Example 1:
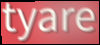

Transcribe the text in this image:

tyare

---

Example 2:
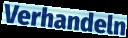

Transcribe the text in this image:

Verhandeln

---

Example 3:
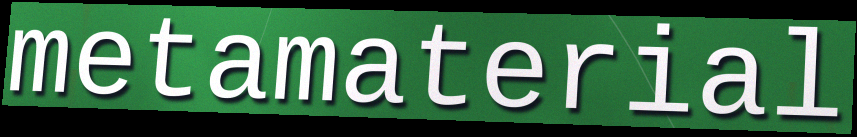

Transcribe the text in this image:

metamaterial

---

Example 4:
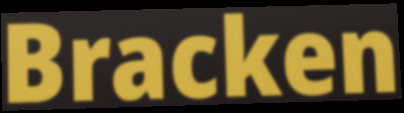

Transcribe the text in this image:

Bracken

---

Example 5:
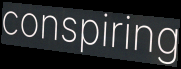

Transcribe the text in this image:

conspiring